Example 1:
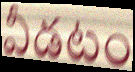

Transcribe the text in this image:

వీడటం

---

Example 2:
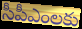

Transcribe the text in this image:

సీపీఎంలకు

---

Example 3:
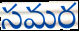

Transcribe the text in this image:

సమర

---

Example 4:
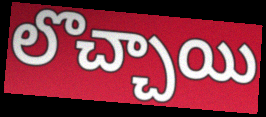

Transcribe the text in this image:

లొచ్చాయి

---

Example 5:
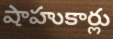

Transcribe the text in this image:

షాహుకార్లు